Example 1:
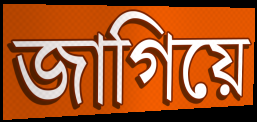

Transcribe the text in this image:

জাগিয়ে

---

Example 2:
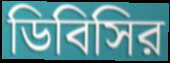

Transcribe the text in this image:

ডিবিসির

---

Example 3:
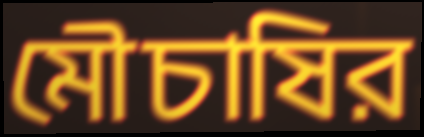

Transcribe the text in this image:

মৌচাষির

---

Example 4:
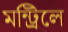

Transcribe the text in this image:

মন্ট্রিলে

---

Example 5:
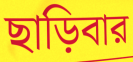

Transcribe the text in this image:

ছাড়িবার